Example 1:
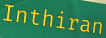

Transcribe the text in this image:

Inthiran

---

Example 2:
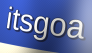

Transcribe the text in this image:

itsgoa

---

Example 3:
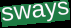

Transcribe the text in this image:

sways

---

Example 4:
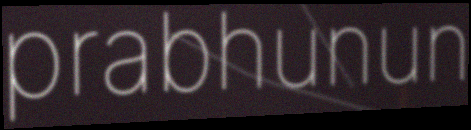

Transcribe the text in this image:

prabhunun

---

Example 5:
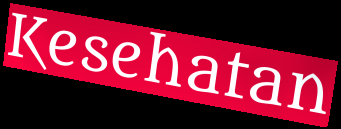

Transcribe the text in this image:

Kesehatan